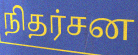
நிதர்சன